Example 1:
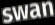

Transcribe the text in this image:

swan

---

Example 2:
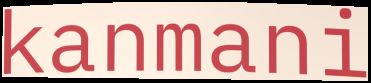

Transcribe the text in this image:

kanmani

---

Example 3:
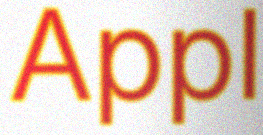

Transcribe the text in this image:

Appl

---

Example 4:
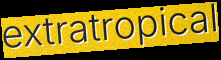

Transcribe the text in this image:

extratropical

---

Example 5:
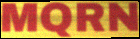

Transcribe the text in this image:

MQRN